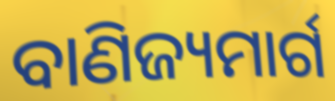
ବାଣିଜ୍ୟମାର୍ଗ